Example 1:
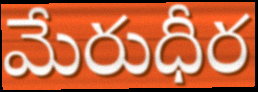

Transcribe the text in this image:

మేరుధీర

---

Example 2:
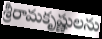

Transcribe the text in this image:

శ్రీరామకృష్ణులను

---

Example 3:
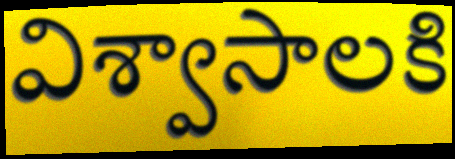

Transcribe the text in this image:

విశ్వాసాలకి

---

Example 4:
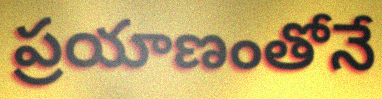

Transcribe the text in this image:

ప్రయాణంతోనే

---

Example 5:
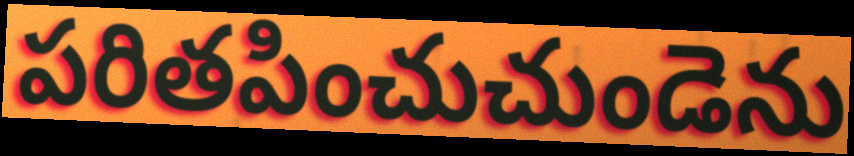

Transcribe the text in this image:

పరితపించుచుండెను